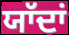
ਯਾੱਦਾਂ